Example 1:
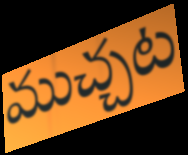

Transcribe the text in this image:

ముచ్చట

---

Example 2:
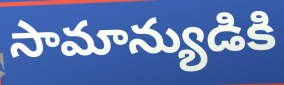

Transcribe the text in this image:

సామాన్యుడికి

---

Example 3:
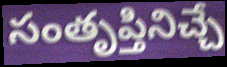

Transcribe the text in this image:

సంతృప్తినిచ్చే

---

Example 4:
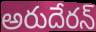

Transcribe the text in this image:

అరుదేరన్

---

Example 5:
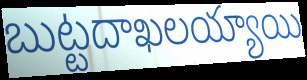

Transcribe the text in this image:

బుట్టదాఖలయ్యాయి